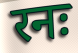
रनः